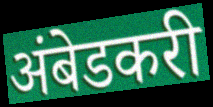
अंबेडकरी